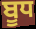
ਬੂਧ